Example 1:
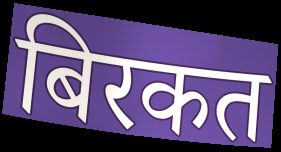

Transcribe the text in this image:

बिरकत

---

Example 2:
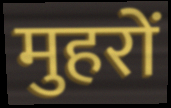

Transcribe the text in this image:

मुहरों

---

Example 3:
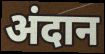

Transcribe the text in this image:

अंदान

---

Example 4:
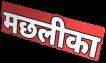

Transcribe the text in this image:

मछलीका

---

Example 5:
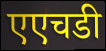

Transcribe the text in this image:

एएचडी